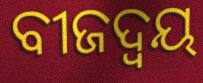
ବୀଜଦ୍ଵୟ